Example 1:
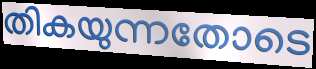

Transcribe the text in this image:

തികയുന്നതോടെ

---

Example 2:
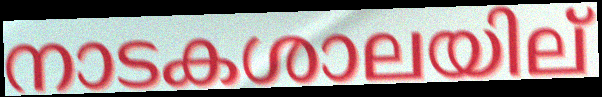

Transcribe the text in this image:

നാടകശാലയില്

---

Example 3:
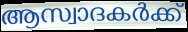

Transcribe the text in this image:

ആസ്വാദകർക്ക്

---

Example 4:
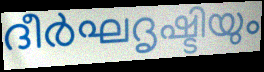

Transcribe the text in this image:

ദീർഘദൃഷ്ടിയും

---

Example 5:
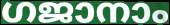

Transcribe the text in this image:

ഗജാനാം